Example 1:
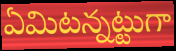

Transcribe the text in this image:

ఏమిటన్నట్టుగా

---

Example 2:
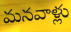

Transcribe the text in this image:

మనవాళ్లు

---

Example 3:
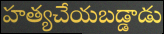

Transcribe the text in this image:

హత్యచేయబడ్డాడు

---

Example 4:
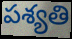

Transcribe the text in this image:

పశ్యతి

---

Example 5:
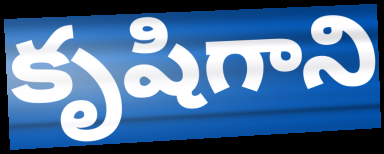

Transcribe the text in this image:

కృషిగాని